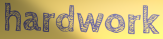
hardwork